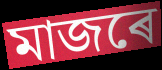
মাজৰে